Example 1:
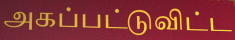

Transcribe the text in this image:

அகப்பட்டுவிட்ட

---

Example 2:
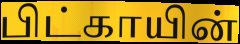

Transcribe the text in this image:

பிட்காயின்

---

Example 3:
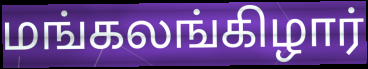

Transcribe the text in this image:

மங்கலங்கிழார்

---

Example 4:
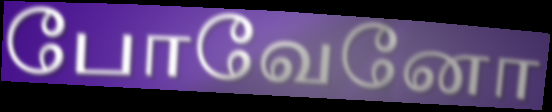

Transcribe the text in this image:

போவேனோ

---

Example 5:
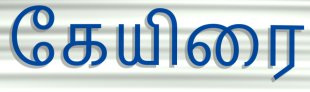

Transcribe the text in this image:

கேயிரை